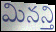
మినన్తి